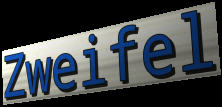
Zweifel